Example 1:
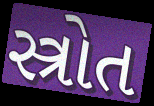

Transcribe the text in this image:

સ્ત્રોત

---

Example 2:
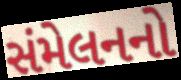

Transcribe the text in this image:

સંમેલનનો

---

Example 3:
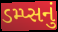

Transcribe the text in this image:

ડમ્પ્સનું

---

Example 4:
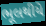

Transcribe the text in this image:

ભૂલથીયે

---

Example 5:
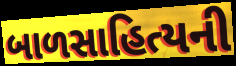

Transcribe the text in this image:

બાળસાહિત્યની